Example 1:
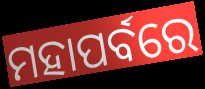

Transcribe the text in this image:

ମହାପର୍ବରେ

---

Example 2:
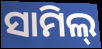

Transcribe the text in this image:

ସାମିଲ୍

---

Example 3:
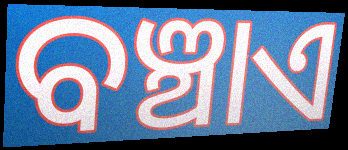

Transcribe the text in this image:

ବଞ୍ଚାଏ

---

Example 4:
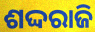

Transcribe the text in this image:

ଶଦ୍ଦରାଜି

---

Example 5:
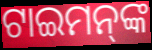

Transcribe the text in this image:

ଟାଇମନ୍‌ଙ୍କ